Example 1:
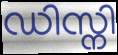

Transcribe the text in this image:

ഡിസ്നി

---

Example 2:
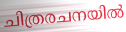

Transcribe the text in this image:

ചിത്രരചനയിൽ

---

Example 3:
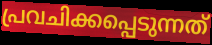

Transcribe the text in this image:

പ്രവചിക്കപ്പെടുന്നത്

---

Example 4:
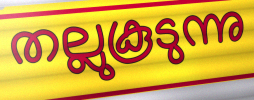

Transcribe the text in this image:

തല്ലുകൂടുന്നു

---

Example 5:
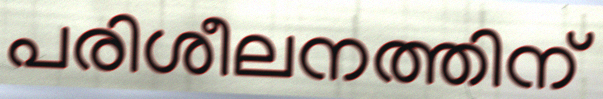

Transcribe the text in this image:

പരിശീലനത്തിന്